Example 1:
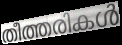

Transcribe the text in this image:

തീത്തരികൾ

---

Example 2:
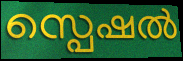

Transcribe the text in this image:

സ്പെഷൽ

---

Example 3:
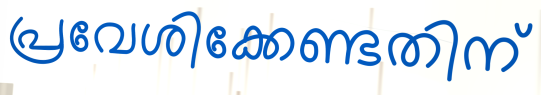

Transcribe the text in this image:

പ്രവേശിക്കേണ്ടതിന്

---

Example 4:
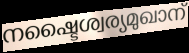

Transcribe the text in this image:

നഷ്ടൈശ്വര്യമുഖാന്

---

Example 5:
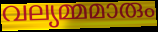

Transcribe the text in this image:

വല്യമ്മമാരും